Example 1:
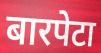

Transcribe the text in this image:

बारपेटा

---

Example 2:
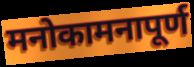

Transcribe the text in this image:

मनोकामनापूर्ण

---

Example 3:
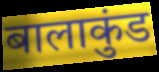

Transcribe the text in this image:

बालाकुंड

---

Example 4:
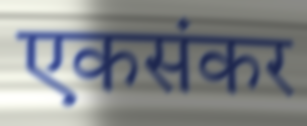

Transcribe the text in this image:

एकसंकर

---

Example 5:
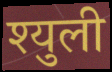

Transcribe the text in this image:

श्युली